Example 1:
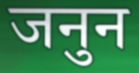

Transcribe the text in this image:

जनुन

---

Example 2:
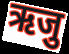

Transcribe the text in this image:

ऋजु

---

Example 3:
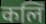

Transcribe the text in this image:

कलिं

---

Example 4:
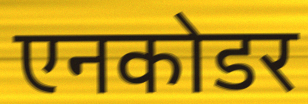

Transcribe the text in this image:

एनकोडर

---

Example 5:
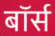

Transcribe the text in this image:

बॉर्स